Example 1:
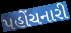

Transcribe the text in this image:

પહોંચનારી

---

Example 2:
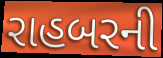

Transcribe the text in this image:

રાહબરની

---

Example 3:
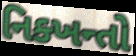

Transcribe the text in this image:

નિક્ખન્તો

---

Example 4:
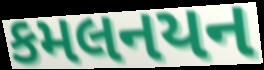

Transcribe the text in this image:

કમલનયન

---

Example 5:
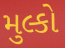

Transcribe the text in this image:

મુલ્કો